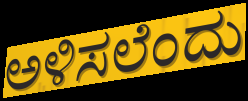
ಅಳಿಸಲೆಂದು